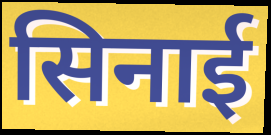
सिनाई